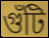
গুঁটি